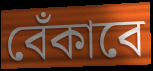
বেঁকাবে